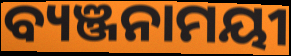
ବ୍ୟଞ୍ଜନାମୟୀ